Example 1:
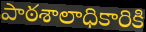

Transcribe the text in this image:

పాఠశాలాధికారికి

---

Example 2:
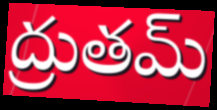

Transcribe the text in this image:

ద్రుతమ్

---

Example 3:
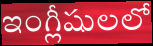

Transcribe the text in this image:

ఇంగ్లీషులలో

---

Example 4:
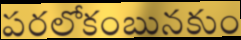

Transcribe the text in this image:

పరలోకంబునకుం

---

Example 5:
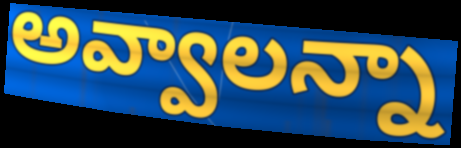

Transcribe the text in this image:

అవ్వాలన్నా